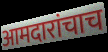
आमदारांचाच